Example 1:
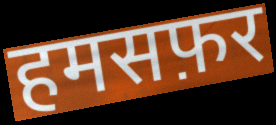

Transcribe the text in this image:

हमसफ़र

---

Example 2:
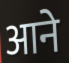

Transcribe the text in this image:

आने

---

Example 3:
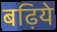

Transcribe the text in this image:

बढ़िये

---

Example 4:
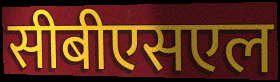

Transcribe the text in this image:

सीबीएसएल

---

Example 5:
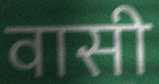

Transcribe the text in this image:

वासी